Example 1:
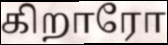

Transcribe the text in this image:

கிறாரோ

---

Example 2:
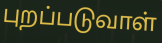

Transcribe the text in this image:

புறப்படுவாள்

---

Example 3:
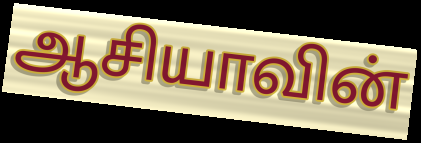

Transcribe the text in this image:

ஆசியாவின்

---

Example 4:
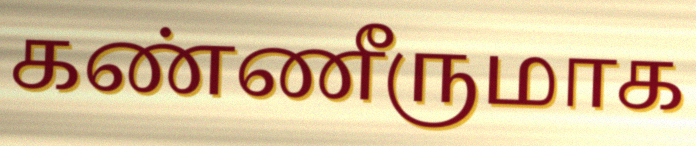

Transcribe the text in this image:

கண்ணீருமாக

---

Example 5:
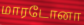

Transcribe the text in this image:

மாரடோனா